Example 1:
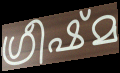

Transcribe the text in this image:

ഗ്രീഷ്മ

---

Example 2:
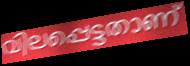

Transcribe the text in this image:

വിലപ്പെട്ടതാണ്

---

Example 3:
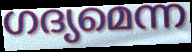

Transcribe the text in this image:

ഗദ്യമെന്ന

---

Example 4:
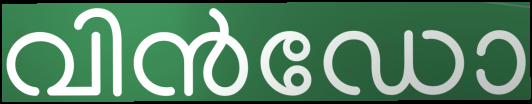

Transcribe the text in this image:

വിൻഡോ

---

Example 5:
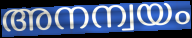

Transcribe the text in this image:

അനന്വയം